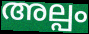
അല്പം